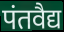
पंतवैद्य